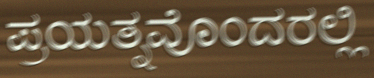
ಪ್ರಯತ್ನವೊಂದರಲ್ಲಿ